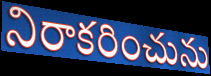
నిరాకరించును